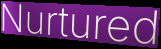
Nurtured